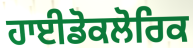
ਹਾਈਡੋਕਲੋਰਿਕ